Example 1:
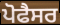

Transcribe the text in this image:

ਪੋਫੈਸਰ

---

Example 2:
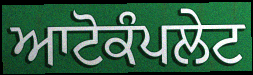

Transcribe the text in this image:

ਆਟੋਕੰਪਲੇਟ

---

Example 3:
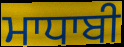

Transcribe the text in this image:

ਮਾਧਾਬੀ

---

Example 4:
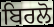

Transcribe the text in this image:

ਬਿਰਲੋ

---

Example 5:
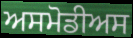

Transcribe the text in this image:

ਅਸਮੋਡੀਅਸ